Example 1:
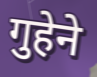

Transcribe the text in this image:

गुहेने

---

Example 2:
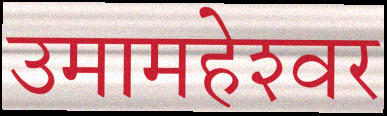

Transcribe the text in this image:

उमामहेश्वर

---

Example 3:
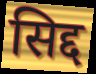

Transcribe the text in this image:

सिद्द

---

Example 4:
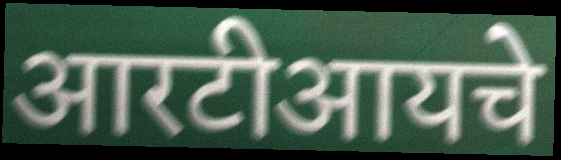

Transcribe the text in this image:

आरटीआयचे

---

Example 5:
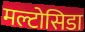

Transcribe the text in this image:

मल्टोसिडा